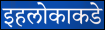
इहलोकाकडे